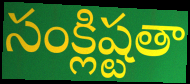
సంక్లిష్టతా